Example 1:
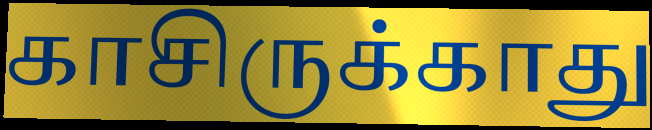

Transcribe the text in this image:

காசிருக்காது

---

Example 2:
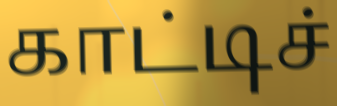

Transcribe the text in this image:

காட்டிச்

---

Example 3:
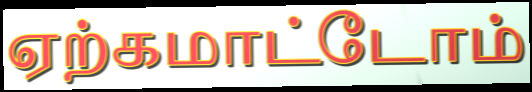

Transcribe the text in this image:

ஏற்கமாட்டோம்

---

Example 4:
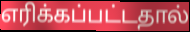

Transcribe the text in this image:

எரிக்கப்பட்டதால்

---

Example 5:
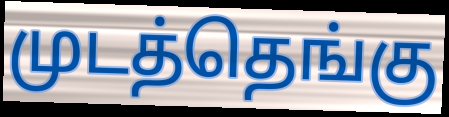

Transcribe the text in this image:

முடத்தெங்கு